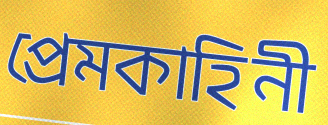
প্রেমকাহিনী